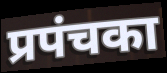
प्रपंचका